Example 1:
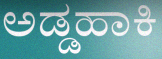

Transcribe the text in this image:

ಅಡ್ಡಹಾಕಿ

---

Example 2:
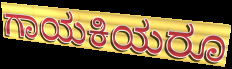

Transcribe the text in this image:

ಗಾಯಕಿಯರೂ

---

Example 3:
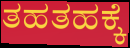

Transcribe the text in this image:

ತಹತಹಕ್ಕೆ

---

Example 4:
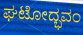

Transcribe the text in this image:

ಘಟೋದ್ಭವಂ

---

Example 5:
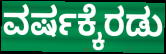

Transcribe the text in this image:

ವರ್ಷಕ್ಕೆರಡು